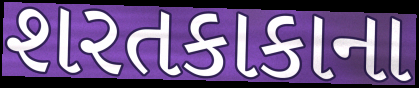
શરતકાકાના